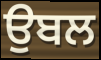
ਉਬਲ